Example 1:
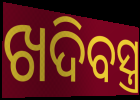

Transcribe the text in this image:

ଖଦିବସ୍ତ୍ର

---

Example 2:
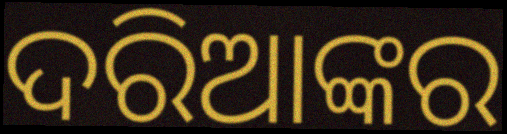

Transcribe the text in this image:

ଦରିଆଙ୍କର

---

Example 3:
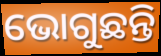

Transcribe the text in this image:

ଭୋଗୁଛନ୍ତି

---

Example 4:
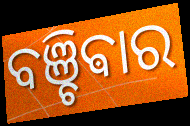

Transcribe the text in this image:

ବଞ୍ଚିଵାର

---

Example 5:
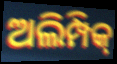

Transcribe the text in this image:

ଅଲିମ୍ପିକ୍